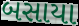
બસાયા